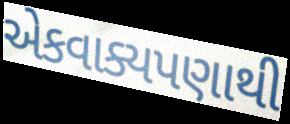
એકવાક્યપણાથી